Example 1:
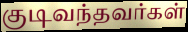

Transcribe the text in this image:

குடிவந்தவர்கள்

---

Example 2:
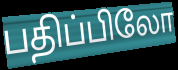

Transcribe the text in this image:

பதிப்பிலோ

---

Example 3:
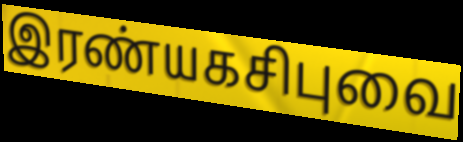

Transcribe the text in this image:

இரண்யகசிபுவை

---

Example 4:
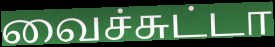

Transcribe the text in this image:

வைச்சுட்டா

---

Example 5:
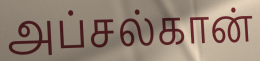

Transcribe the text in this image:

அப்சல்கான்